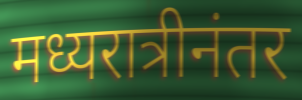
मध्यरात्रीनंतर